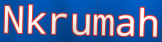
Nkrumah